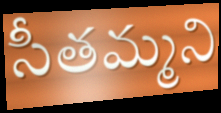
సీతమ్మని